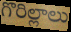
గొరిల్లాలు